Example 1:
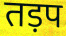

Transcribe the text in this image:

तड़प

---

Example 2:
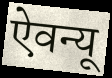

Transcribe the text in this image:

ऐवन्यू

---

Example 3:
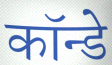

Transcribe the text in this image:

कॉन्डे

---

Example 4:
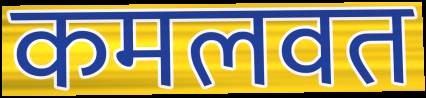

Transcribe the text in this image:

कमलवत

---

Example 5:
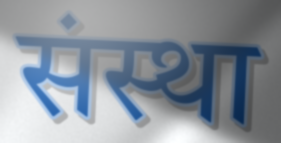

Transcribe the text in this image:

संस्‍था